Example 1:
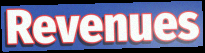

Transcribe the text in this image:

Revenues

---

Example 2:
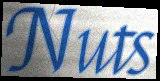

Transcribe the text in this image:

Nuts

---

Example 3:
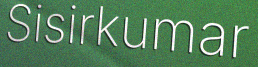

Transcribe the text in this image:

Sisirkumar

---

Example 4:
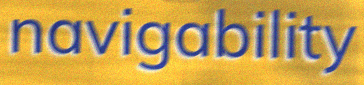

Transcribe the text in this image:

navigability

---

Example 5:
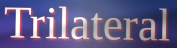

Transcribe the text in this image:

Trilateral